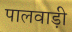
पालवाड़ी